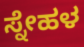
ಸ್ನೇಹಳ